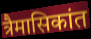
त्रैमासिकांत